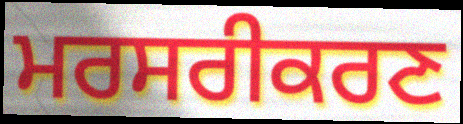
ਮਰਸਰੀਕਰਣ